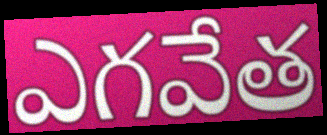
ఎగవేత